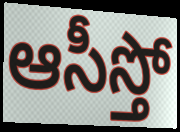
ఆసీస్తో